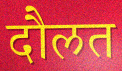
दौलत